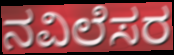
ನವಿಲೆಸರ